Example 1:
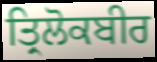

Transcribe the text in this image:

ਤ੍ਰਿਲੋਕਬੀਰ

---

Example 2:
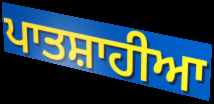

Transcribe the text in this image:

ਪਾਤਸ਼ਾਹੀਆ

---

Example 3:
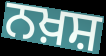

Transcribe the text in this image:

ਨਖ਼ਸ਼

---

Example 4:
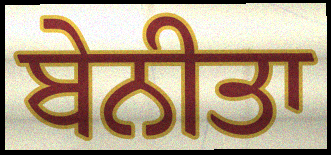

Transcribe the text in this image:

ਬੇਨੀਤਾ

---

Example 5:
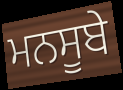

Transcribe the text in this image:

ਮਨਸੂਬੇ